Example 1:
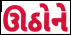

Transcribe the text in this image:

ઊઠોને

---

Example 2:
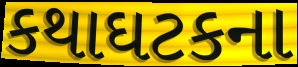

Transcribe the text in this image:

કથાઘટકના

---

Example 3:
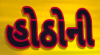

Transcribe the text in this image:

હોઠોની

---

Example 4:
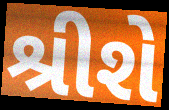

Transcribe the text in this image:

શ્રીશે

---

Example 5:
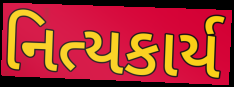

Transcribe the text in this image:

નિત્યકાર્ય